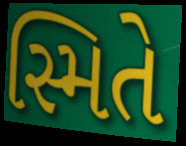
સ્મિતે